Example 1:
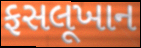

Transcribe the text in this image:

ફસલૂખાન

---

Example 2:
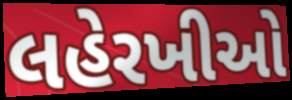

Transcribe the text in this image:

લહેરખીઓ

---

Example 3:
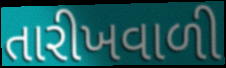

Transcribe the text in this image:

તારીખવાળી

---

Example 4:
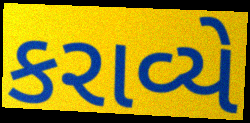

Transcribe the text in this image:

કરાવ્યે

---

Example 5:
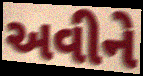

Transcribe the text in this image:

અવીને